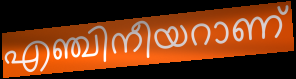
എഞ്ചിനീയറാണ്